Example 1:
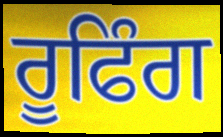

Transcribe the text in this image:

ਰੂਫਿੰਗ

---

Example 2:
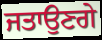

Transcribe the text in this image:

ਜਤਾਉਣਗੇ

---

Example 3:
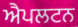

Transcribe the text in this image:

ਐਪਲਟਨ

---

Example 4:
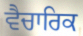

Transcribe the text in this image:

ਵੈਚਾਰਿਕ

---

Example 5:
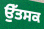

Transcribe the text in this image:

ਉੱਤਸਕ